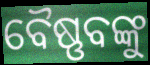
ବୈଷ୍ଣବଙ୍କୁ